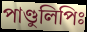
পাণ্ডুলিপিঃ